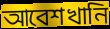
আবেশখানি